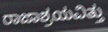
ರಾಜಾಶ್ರಯವಿತ್ತು